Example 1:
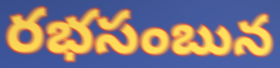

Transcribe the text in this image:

రభసంబున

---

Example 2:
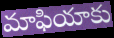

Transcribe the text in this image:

మాఫియాకు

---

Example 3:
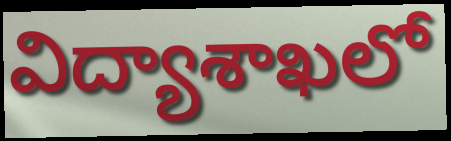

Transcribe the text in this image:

విద్యాశాఖలో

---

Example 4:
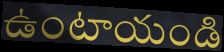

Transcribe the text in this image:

ఉంటాయండి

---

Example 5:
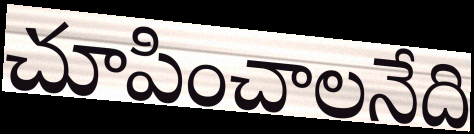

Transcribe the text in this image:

చూపించాలనేది